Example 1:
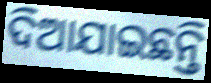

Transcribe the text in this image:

ଦିଆଯାଇଛନ୍ତି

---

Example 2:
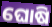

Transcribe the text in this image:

ଘୋଷି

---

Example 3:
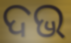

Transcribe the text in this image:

ଦଭ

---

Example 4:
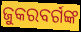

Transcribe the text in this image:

ଜୁକରବର୍ଗଙ୍କ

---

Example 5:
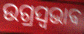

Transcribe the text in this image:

ଉଗ୍ରସ୍ୱଭାବ